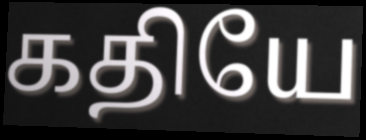
கதியே